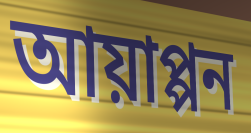
আয়াপ্পন